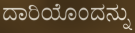
ದಾರಿಯೊಂದನ್ನು